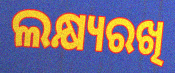
ଲକ୍ଷ୍ୟରଖି